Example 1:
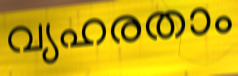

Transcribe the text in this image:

വ്യഹരതാം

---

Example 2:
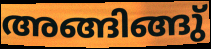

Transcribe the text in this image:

അങ്ങിങ്ങു്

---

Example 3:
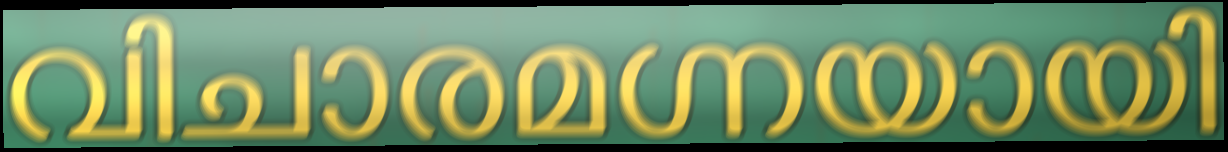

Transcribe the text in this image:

വിചാരമഗ്നയായി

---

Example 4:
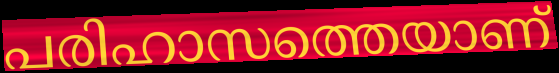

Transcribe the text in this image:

പരിഹാസത്തെയാണ്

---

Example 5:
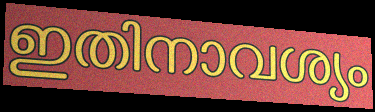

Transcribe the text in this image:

ഇതിനാവശ്യം